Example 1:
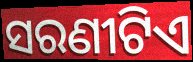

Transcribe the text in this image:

ସରଣୀଟିଏ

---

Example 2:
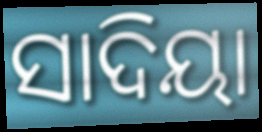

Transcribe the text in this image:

ସାଦିୟା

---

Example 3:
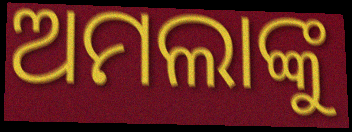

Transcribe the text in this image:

ଅମଲାଙ୍କୁ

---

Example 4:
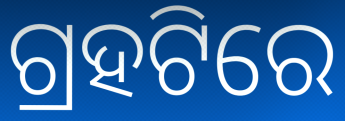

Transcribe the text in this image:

ଗ୍ରହଟିରେ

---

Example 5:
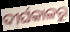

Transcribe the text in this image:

ଦୀର୍ଘକାଳରୁ